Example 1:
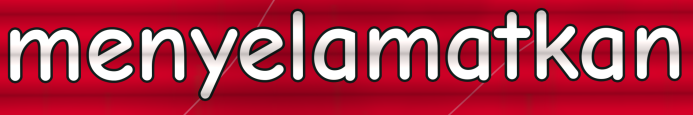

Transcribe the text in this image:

menyelamatkan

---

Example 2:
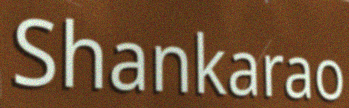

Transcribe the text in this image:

Shankarao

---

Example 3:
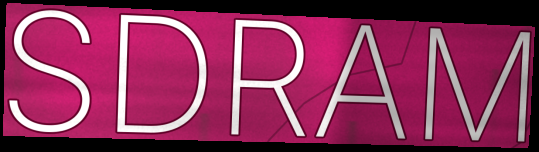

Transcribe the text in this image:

SDRAM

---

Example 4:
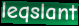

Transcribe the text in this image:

leqslant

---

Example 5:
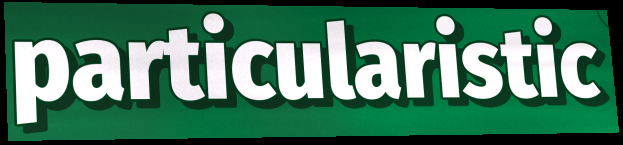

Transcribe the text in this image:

particularistic